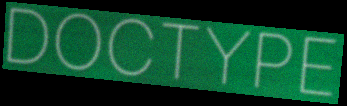
DOCTYPE